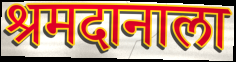
श्रमदानाला